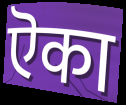
ऎका